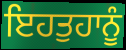
ਇਹਤੁਹਾਨੂੰ